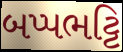
બપ્પભટ્ટિ